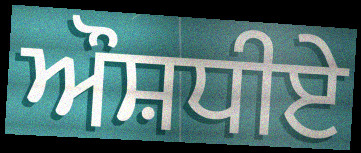
ਔਸ਼ਧੀਏ